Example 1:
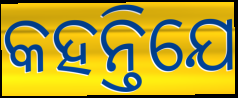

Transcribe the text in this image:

କହନ୍ତିଯେ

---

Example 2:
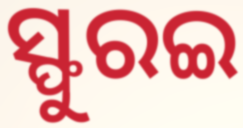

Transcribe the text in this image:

ସ୍ଫୁରଇ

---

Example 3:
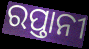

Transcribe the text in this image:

ରପ୍ତାନୀ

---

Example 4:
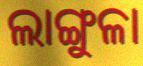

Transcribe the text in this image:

ଲାଙ୍ଗୁଳା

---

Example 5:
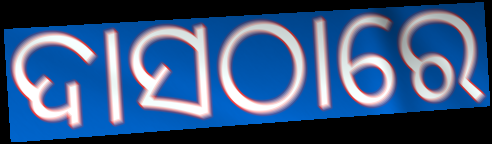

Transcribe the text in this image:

ଦାସଠାରେ